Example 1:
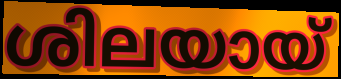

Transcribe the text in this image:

ശിലയായ്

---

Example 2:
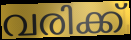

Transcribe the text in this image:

വരിക്ക്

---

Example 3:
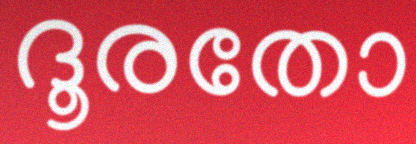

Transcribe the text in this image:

ദൂരതോ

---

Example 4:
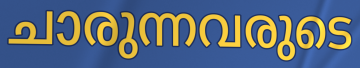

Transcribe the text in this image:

ചാരുന്നവരുടെ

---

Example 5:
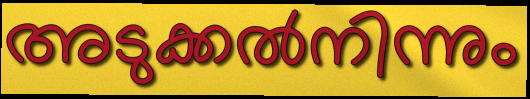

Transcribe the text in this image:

അടുക്കൽനിന്നും